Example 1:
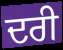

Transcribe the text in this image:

ਦਰੀ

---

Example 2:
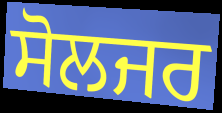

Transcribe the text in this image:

ਸੋਲਜਰ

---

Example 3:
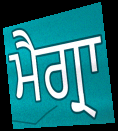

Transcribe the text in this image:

ਮੈਗ੍ਰਾ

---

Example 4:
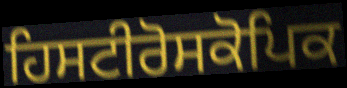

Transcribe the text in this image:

ਹਿਸਟੀਰੋਸਕੋਪਿਕ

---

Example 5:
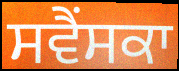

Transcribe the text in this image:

ਸਵੈਂਸਕਾ